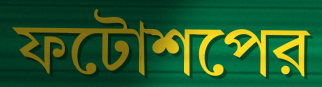
ফটোশপের